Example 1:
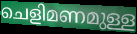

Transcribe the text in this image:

ചെളിമണമുള്ള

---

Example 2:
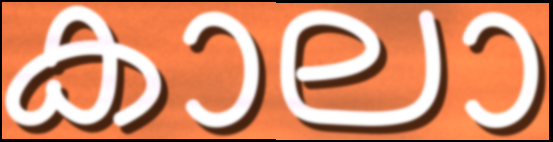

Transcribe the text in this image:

കാലാ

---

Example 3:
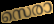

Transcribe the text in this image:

സെരാ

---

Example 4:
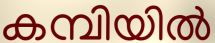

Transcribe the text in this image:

കമ്പിയിൽ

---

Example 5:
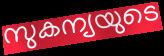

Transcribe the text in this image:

സുകന്യയുടെ